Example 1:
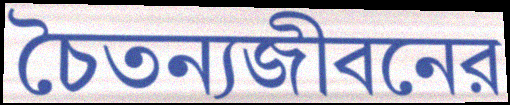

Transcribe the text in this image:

চৈতন্যজীবনের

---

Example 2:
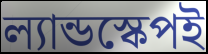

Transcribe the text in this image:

ল্যান্ডস্কেপই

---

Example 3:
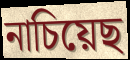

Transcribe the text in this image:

নাচিয়েছ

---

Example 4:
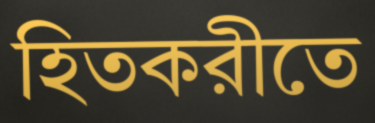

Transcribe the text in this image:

হিতকরীতে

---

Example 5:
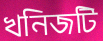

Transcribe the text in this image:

খনিজটি